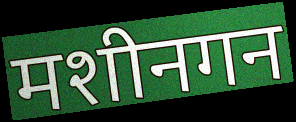
मशीनगन